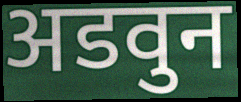
अडवुन